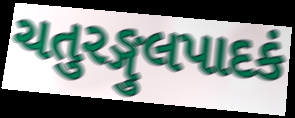
ચતુરઙ્ગુલપાદકં